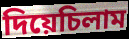
দিয়েচিলাম